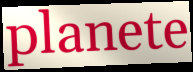
planete